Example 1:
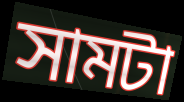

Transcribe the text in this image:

সামটা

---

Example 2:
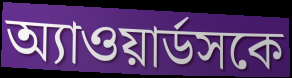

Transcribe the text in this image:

অ্যাওয়ার্ডসকে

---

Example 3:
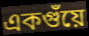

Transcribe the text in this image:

একগুঁয়ে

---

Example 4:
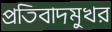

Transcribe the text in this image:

প্রতিবাদমুখর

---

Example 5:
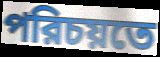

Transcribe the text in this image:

পরিচয়তে